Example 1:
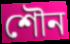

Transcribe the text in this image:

শৌন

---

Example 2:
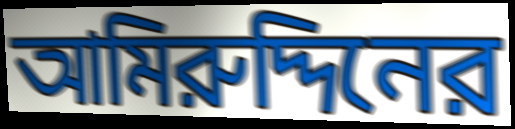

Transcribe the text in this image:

আমিরুদ্দিনের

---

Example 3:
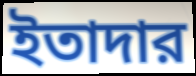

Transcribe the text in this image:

ইতাদার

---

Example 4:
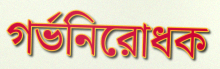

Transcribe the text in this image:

গর্ভনিরোধক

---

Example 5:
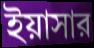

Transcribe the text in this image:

ইয়াসার